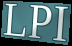
LPI